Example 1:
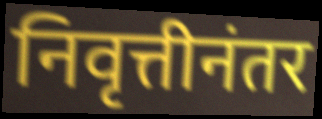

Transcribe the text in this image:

निवृत्तीनंतर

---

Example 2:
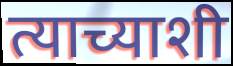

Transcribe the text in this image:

त्याच्याशी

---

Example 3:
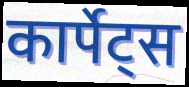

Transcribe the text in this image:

कार्पेट्स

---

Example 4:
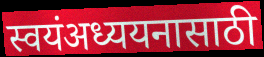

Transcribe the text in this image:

स्वयंअध्ययनासाठी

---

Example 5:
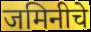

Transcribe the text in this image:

जमिनीचे